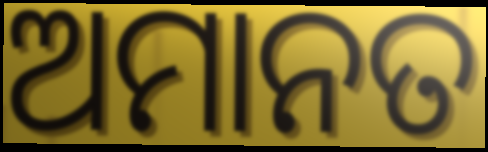
ଅମାନତ